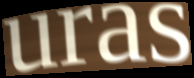
uras